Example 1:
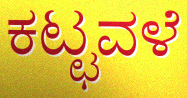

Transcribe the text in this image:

ಕಟ್ಟವಳೆ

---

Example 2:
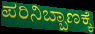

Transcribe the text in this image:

ಪರಿನಿಬ್ಬಾಣಕ್ಕೆ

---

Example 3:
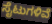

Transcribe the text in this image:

ಸೈಟುಗಳಿವೆ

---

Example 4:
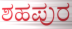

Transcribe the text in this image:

ಶಹಪುರ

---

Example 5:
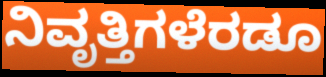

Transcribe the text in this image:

ನಿವೃತ್ತಿಗಳೆರಡೂ